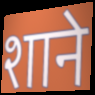
शाने